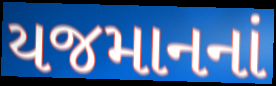
યજમાનનાં